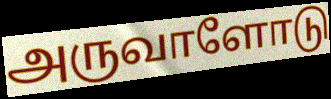
அருவாளோடு